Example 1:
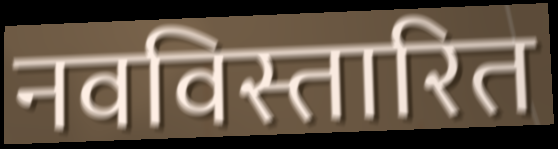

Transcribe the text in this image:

नवविस्तारित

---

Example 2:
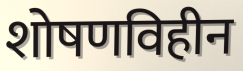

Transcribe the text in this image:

शोषणविहीन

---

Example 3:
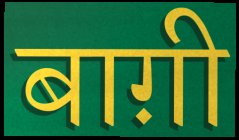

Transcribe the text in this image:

बाग़ी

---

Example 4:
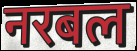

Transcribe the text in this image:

नरबल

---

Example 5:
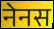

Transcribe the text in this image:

नेनस